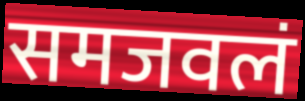
समजवलं